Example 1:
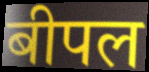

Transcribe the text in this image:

बीपल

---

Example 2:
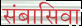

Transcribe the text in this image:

संबासिवा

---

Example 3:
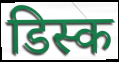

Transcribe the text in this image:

डिस्क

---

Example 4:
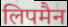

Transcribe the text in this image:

लिपमैन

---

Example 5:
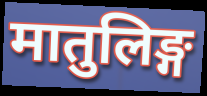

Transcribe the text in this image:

मातुलिङ्ग